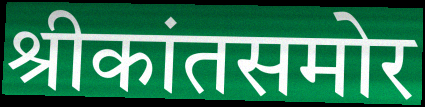
श्रीकांतसमोर